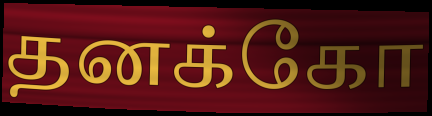
தனக்கோ